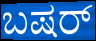
ಬಷರ್